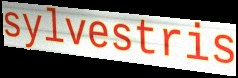
sylvestris